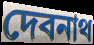
দেবনাথ